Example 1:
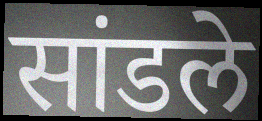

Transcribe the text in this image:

सांडले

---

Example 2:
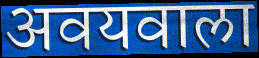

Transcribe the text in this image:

अवयवाला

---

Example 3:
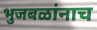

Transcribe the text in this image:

भुजबळांनाच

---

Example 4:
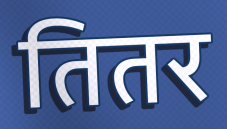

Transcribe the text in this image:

तितर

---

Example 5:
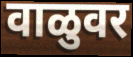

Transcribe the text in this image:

वाळुवर